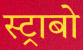
स्ट्राबो